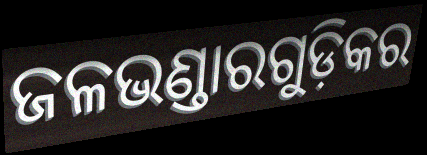
ଜଳଭଣ୍ଡାରଗୁଡ଼ିକର